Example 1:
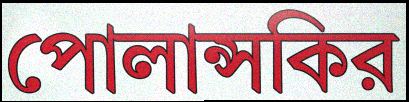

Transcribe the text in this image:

পোলান্সকির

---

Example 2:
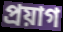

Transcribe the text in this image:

প্রয়াগ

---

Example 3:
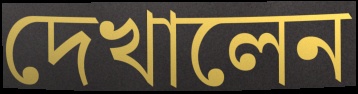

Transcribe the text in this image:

দেখালেন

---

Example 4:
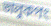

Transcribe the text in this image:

ভালুকপং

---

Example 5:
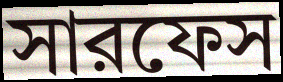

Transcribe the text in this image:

সারফেস